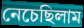
নেচেছিলাম